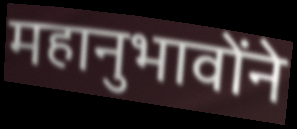
महानुभावोंने